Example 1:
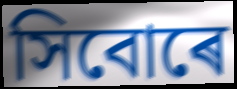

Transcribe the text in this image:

সিবোৰে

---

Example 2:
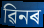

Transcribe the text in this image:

ৱিনৰ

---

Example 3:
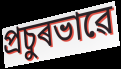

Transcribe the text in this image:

প্ৰচুৰভাৱে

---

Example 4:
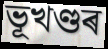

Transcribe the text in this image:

ভূখণ্ডৰ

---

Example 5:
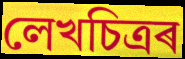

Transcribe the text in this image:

লেখচিত্ৰৰ